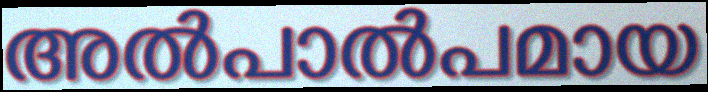
അൽപാൽപമായ